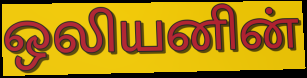
ஒலியனின்